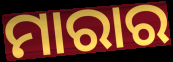
ମାରାର